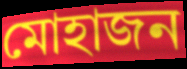
মোহাজন